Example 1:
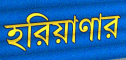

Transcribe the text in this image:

হরিয়াণার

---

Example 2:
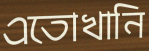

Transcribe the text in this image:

এতোখানি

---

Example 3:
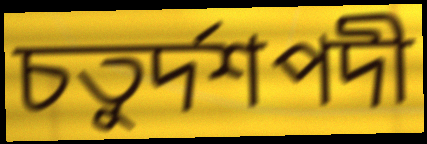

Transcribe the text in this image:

চতুর্দশপদী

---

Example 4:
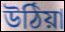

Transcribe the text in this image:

উঠিয়া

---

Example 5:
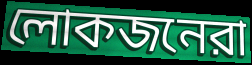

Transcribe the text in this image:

লোকজনেরা